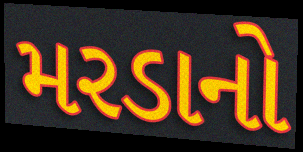
મરડાનો